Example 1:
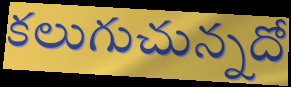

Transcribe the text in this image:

కలుగుచున్నదో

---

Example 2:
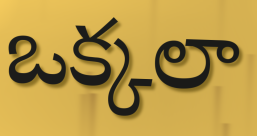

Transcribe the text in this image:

ఒక్కలా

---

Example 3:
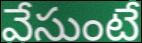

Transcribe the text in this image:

వేసుంటే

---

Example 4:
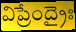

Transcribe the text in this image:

విప్రేంద్రైః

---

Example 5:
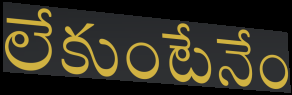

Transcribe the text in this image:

లేకుంటేనేం